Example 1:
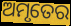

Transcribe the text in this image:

ଅମୃତେର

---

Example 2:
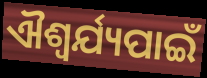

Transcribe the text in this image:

ଐଶ୍ୱର୍ଯ୍ୟପାଇଁ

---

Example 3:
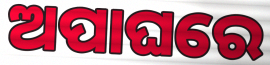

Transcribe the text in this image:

ଅପାଘରେ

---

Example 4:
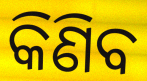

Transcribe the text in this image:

କିଣିବ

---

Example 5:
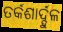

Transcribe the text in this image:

ତର୍କଶାର୍ଦ୍ଦୁଳ